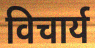
विचार्य